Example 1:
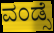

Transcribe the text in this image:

ವಂಡ್ಸೆ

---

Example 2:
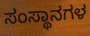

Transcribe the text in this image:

ಸಂಸ್ಥಾನಗಳ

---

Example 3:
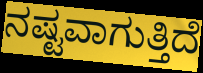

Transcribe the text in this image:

ನಷ್ಟವಾಗುತ್ತಿದೆ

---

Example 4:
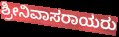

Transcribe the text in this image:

ಶ್ರೀನಿವಾಸರಾಯರು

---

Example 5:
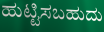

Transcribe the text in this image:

ಹುಟ್ಟಿಸಬಹುದು